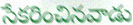
సేకరించినవాడు